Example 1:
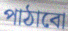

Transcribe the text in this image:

পাঠাবো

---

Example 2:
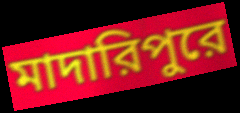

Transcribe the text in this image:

মাদারিপুরে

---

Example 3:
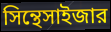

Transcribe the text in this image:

সিন্থেসাইজার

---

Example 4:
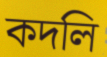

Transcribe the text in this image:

কদলি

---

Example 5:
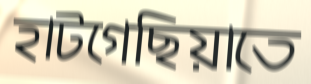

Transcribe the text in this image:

হাটগেছিয়াতে